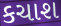
કચાશ